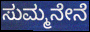
ಸುಮ್ಮನೇನೆ